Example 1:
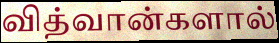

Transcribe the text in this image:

வித்வான்களால்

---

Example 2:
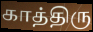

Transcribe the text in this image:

காத்திரு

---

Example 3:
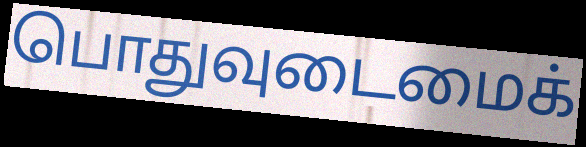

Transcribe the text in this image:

பொதுவுடைமைக்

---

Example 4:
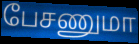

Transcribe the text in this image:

பேசணுமா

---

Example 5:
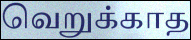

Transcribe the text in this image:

வெறுக்காத